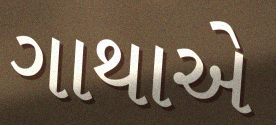
ગાથાએ